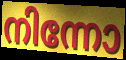
നിന്നോ